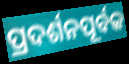
ପ୍ରଦର୍ଶନପୂର୍ବକ